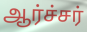
ஆர்ச்சர்